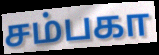
சம்பகா